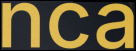
nca